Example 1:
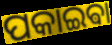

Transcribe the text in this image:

ପକାଇଵା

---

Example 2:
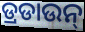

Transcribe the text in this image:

ଡ୍ରଡାଉନ୍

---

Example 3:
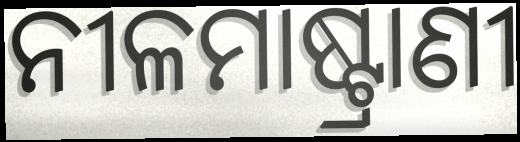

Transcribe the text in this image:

ନୀଳମାଷ୍ଟ୍ରାଣୀ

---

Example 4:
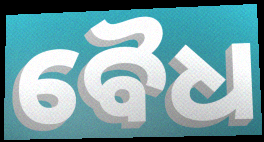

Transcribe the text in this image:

ବୈଧ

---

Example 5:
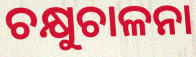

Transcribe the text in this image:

ଚକ୍ଷୁଚାଳନା